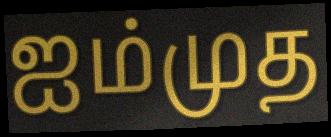
ஐம்முத